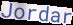
Jordar